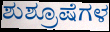
ಶುಶ್ರೂಷೆಗಳ